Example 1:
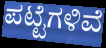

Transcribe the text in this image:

ಪಟ್ಟೆಗಳಿವೆ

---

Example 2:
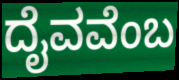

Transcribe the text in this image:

ದೈವವೆಂಬ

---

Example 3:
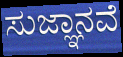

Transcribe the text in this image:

ಸುಜ್ಞಾನವೆ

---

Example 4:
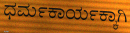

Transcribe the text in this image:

ಧರ್ಮಕಾರ್ಯಕ್ಕಾಗಿ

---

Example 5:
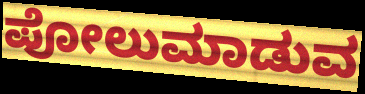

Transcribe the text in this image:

ಪೋಲುಮಾಡುವ